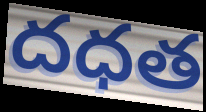
దధత